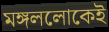
মঙ্গললোকেই